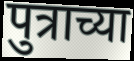
पुत्राच्या